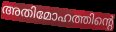
അതിമോഹത്തിന്റെ